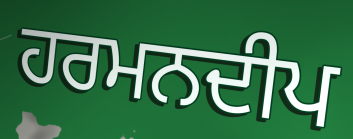
ਹਰਮਨਦੀਪ